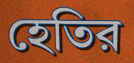
হেতির